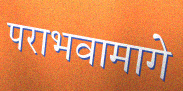
पराभवामागे